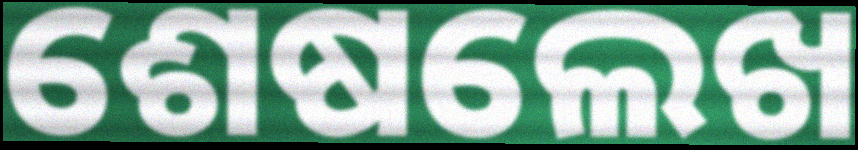
ଶେଷଲେଖ